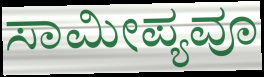
ಸಾಮೀಪ್ಯವೂ